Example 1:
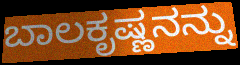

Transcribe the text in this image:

ಬಾಲಕೃಷ್ಣನನ್ನು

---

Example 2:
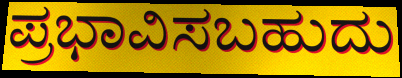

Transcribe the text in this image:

ಪ್ರಭಾವಿಸಬಹುದು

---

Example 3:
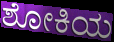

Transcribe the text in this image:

ಶೋಕಿಯ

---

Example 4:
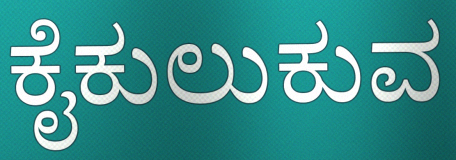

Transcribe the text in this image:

ಕೈಕುಲುಕುವ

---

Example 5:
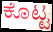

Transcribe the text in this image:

ಕೊಟ್ಟ